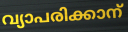
വ്യാപരിക്കാന്